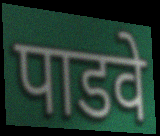
पाडवे